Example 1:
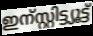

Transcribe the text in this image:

ഇന്സ്റ്റിട്ട്യൂട്ട്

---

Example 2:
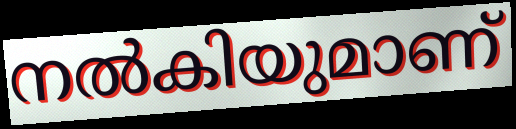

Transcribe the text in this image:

നൽകിയുമാണ്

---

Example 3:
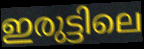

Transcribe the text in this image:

ഇരുട്ടിലെ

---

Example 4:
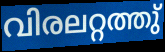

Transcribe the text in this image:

വിരലറ്റത്തു്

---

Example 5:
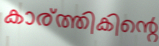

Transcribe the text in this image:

കാര്ത്തികിന്റെ